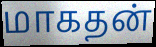
மாகதன்